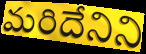
మరిదేనిని